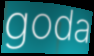
goda